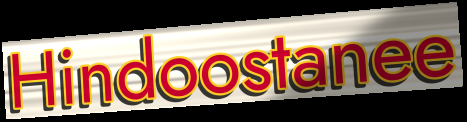
Hindoostanee